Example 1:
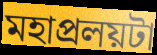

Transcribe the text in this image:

মহাপ্রলয়টা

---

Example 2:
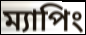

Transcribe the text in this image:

ম্যাপিং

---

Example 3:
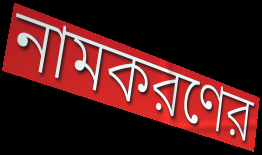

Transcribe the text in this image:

নামকরণের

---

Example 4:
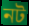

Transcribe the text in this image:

নট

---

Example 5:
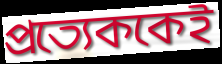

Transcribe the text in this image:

প্রত্যেককেই